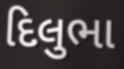
દિલુભા